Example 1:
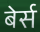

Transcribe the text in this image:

बेर्स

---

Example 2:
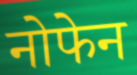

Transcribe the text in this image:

नोफेन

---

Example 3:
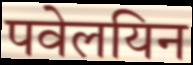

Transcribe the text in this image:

पवेलयिन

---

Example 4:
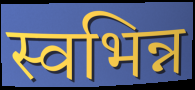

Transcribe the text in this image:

स्वभिन्न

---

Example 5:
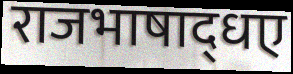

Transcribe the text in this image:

राजभाषाद्धए